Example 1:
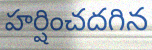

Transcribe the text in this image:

హర్షించదగిన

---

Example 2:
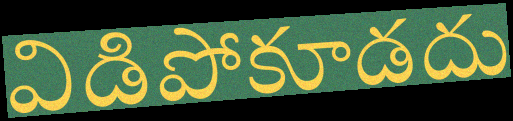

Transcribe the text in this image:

విడిపోకూడదు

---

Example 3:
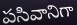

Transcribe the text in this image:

పసివానిగా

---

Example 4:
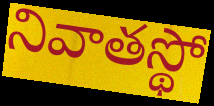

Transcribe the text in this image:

నివాతస్థో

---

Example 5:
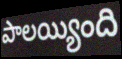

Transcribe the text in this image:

పాలయ్యింది